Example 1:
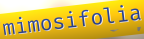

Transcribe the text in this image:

mimosifolia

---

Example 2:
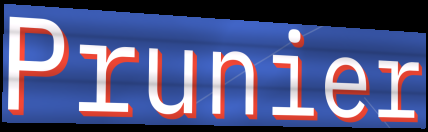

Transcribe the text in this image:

Prunier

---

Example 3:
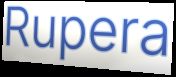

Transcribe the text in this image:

Rupera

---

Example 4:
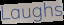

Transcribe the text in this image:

Laughs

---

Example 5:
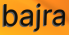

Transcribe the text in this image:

bajra